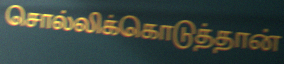
சொல்லிக்கொடுத்தான்